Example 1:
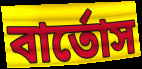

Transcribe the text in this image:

বার্তোস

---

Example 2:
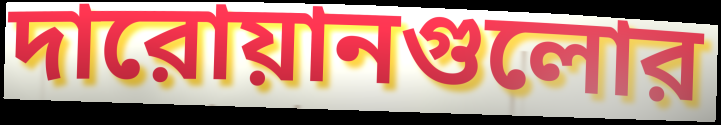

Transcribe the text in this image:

দারোয়ানগুলোর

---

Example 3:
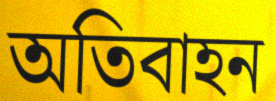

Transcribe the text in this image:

অতিবাহন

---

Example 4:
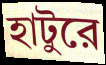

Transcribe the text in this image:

হাটুরে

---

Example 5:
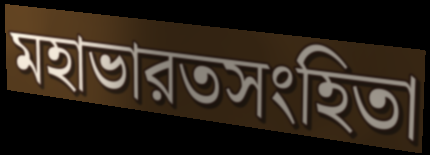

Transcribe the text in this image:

মহাভারতসংহিতা